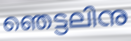
ഞെട്ടലിനു